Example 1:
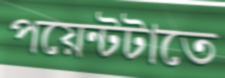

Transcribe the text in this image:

পয়েন্টটাতে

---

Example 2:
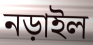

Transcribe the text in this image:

নড়াইল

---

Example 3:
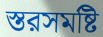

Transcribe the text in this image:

স্তরসমষ্টি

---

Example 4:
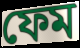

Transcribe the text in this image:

ফেম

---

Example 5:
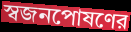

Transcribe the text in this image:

স্বজনপোষণের